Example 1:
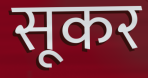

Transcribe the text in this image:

सूकर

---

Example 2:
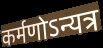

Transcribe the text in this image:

कर्मणोऽन्यत्र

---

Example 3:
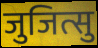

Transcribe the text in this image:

जुजित्सु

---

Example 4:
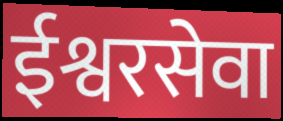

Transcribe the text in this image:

ईश्वरसेवा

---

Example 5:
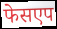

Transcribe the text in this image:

फेसएप